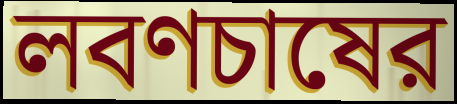
লবণচাষের